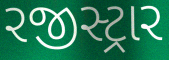
રજીસ્ટ્રાર